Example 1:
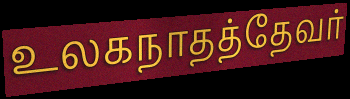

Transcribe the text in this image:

உலகநாதத்தேவர்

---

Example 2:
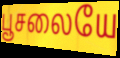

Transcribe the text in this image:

பூசலையே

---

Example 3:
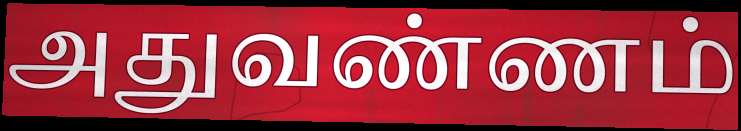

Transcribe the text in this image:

அதுவண்ணம்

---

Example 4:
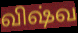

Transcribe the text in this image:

விஷ்வ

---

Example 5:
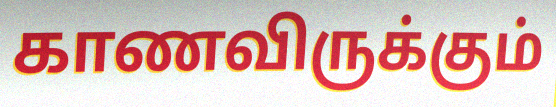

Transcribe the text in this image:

காணவிருக்கும்